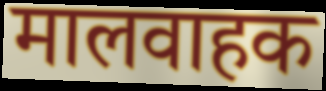
मालवाहक